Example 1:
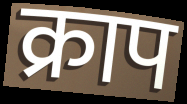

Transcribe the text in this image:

क्राप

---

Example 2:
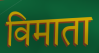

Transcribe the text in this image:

विमाता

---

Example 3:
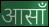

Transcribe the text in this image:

आसाँ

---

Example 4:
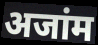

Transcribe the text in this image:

अजांम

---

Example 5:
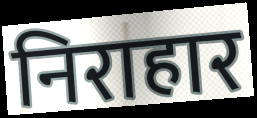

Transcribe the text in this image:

निराहार